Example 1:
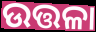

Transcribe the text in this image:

ଉତ୍ତଳା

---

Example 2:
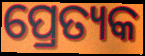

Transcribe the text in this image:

ପ୍ରେତ୍ୟକ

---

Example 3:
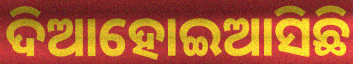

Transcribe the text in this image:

ଦିଆହୋଇଆସିଛି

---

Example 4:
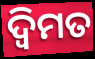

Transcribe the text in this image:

ଦ୍ୱିମତ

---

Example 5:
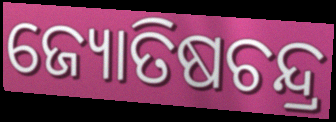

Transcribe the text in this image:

ଜ୍ୟୋତିଷଚନ୍ଦ୍ର